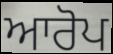
ਆਰੋਪ